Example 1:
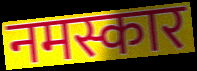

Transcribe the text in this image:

नमस्कार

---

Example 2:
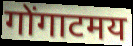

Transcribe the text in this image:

गोंगाटमय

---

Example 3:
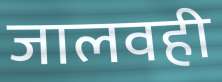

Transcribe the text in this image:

जालवही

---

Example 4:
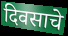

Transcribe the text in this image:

दिवसाचे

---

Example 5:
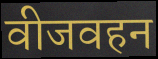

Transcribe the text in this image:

वीजवहन